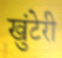
खुंटेरी